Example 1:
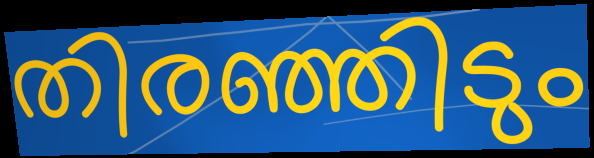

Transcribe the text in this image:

തിരഞ്ഞിടും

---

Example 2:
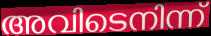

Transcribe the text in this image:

അവിടെനിന്ന്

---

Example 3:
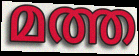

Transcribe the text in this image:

മത്ത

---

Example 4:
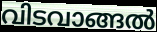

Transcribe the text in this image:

വിടവാങ്ങൽ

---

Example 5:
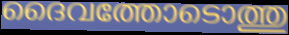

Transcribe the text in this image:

ദൈവത്തോടൊത്തു